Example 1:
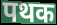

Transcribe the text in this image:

पथक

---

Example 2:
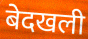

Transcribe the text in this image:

बेदखली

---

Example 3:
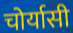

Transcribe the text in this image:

चोर्यासी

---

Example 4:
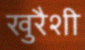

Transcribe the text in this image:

खुरैशी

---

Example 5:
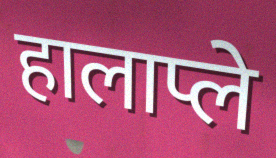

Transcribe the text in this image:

हालाप्ले